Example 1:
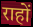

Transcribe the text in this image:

राहों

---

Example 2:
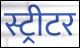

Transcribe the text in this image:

स्ट्रीटर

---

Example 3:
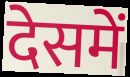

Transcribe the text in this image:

देसमें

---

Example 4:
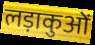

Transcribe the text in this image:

लड़ाकुओं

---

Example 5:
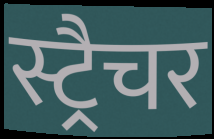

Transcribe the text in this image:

स्ट्रैचर